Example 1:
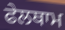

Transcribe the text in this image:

ਫੇਲਥਾਮ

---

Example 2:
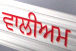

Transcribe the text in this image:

ਵਾਲੀਅਮ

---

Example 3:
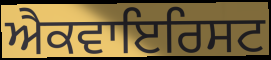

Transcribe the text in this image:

ਐਕਵਾਇਰਿਸਟ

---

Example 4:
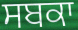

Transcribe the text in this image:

ਸਬਕਾ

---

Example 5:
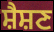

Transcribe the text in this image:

ਸ਼ੈਸ਼ਣ